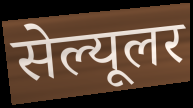
सेल्यूलर